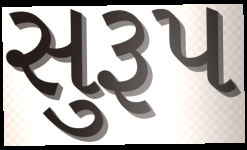
સુરૂપ